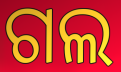
ଗଲ